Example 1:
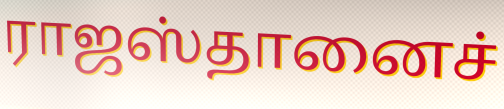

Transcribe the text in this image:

ராஜஸ்தானைச்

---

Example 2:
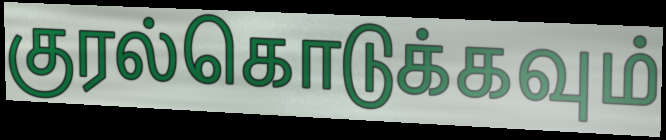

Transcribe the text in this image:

குரல்கொடுக்கவும்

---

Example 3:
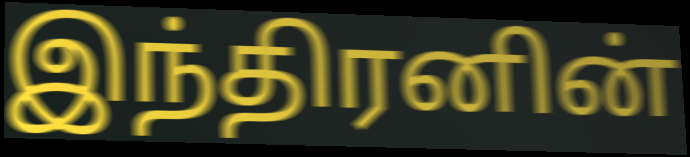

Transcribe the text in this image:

இந்திரனின்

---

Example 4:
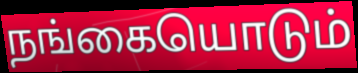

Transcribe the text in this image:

நங்கையொடும்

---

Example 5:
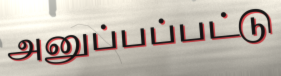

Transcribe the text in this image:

அனுப்பப்பட்டு